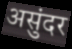
असुंदर